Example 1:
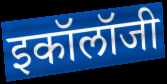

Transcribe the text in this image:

इकॉलॉजी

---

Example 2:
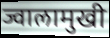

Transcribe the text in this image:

ज्वालामुखी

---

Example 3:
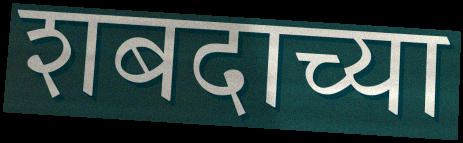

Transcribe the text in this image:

शबदाच्या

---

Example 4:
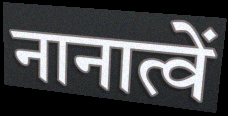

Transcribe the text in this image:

नानात्वें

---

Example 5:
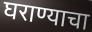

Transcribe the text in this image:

घराण्याचा